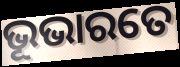
ଭୂଭାରତେ